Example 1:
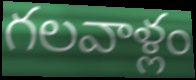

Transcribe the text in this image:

గలవాళ్లం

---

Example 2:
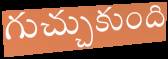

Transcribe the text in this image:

గుచ్చుకుంది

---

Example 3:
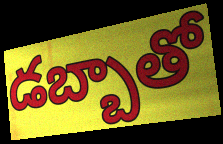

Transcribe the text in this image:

డబ్బాతో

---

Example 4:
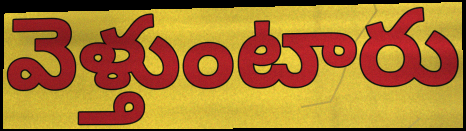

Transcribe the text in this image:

వెళ్తుంటారు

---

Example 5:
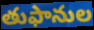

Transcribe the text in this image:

తుఫానుల